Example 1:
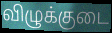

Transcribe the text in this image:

விழுக்குடை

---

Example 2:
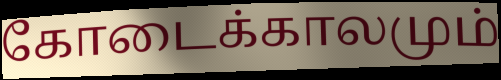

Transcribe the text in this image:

கோடைக்காலமும்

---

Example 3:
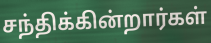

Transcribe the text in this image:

சந்திக்கின்றார்கள்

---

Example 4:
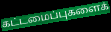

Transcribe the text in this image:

கட்டமைப்புகளைக்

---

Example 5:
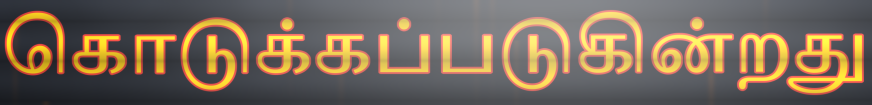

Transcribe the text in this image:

கொடுக்கப்படுகின்றது